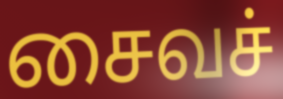
சைவச்